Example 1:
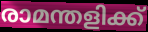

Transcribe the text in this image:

രാമന്തളിക്ക്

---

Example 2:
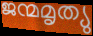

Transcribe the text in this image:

ജന്മമൃത്യു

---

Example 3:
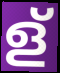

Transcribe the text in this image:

ള്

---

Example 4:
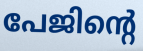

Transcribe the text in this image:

പേജിന്റെ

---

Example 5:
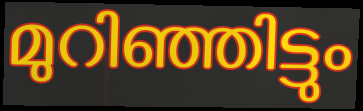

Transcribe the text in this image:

മുറിഞ്ഞിട്ടും